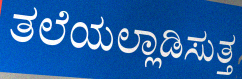
ತಲೆಯಲ್ಲಾಡಿಸುತ್ತ